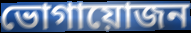
ভোগায়োজন